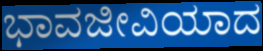
ಭಾವಜೀವಿಯಾದ